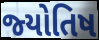
જ્‍યોતિષ